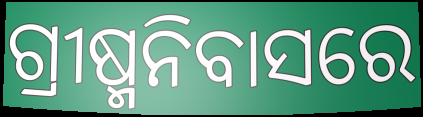
ଗ୍ରୀଷ୍ମନିବାସରେ